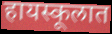
हायस्कूलात